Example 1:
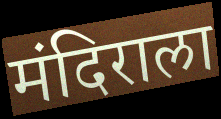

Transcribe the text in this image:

मंदिराला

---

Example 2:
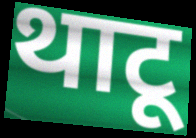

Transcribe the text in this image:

थाटू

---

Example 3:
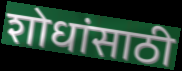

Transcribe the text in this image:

शोधांसाठी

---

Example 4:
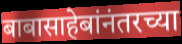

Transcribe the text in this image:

बाबासाहेबांनंतरच्या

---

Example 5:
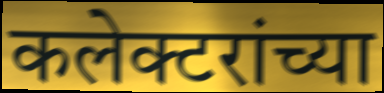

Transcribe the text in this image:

कलेक्टरांच्या